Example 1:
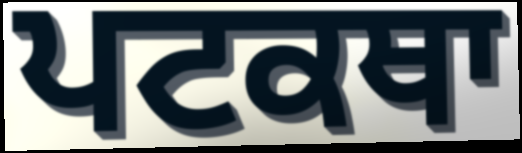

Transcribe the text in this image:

ਪਟਕਥਾ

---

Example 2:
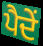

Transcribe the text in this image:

ਪੈਦੇਂ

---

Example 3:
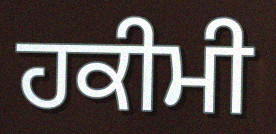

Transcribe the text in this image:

ਹਕੀਮੀ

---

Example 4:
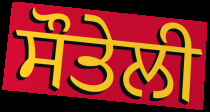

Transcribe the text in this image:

ਸੌਤੇਲੀ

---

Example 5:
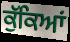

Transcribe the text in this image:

ਕੁੱਕਿਆਂ